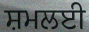
ਸ਼ਮਲਈ